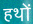
हथों